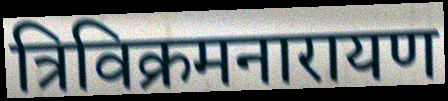
त्रिविक्रमनारायण